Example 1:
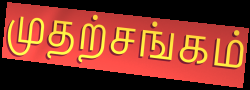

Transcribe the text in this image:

முதற்சங்கம்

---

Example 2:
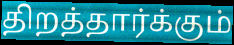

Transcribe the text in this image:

திறத்தார்க்கும்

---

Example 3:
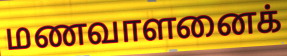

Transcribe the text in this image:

மணவாளனைக்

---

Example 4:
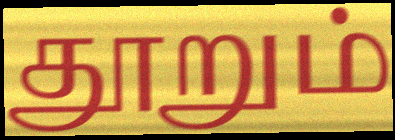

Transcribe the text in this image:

தூறும்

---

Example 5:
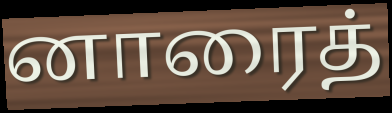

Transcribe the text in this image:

னாரைத்